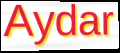
Aydar